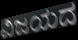
ವಿಜಯದ